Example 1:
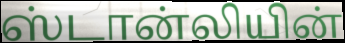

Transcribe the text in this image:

ஸ்டான்லியின்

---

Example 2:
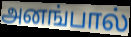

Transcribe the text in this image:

அனங்பால்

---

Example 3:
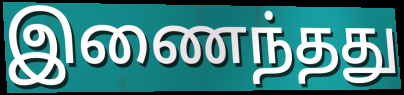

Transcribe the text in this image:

இணைந்தது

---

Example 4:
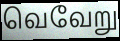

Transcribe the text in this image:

வெவேறு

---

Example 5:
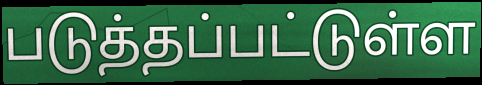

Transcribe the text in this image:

படுத்தப்பட்டுள்ள